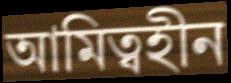
আমিত্বহীন